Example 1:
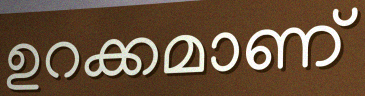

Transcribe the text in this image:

ഉറക്കമാണ്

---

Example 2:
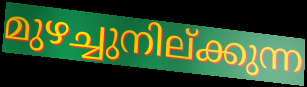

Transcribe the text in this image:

മുഴച്ചുനില്ക്കുന്ന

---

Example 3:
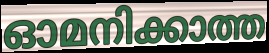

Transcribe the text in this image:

ഓമനിക്കാത്ത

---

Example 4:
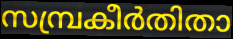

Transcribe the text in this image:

സമ്പ്രകീർതിതാ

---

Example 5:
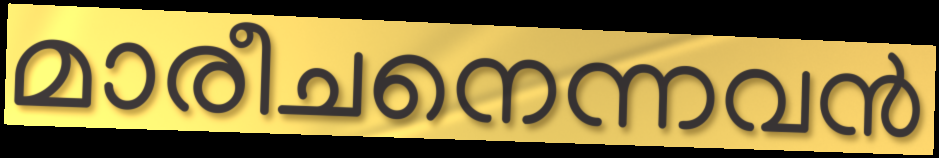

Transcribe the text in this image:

മാരീചനെന്നവൻ